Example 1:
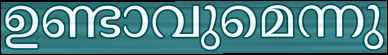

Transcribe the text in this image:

ഉണ്ടാവുമെന്നു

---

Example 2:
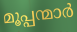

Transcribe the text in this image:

മൂപ്പന്മാർ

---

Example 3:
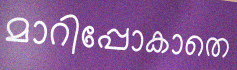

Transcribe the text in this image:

മാറിപ്പോകാതെ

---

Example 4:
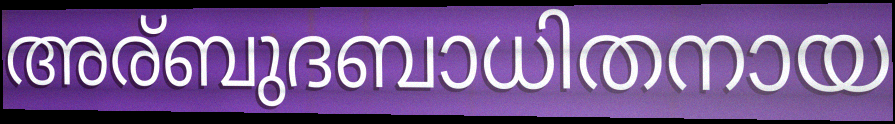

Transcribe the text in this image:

അര്ബുദബാധിതനായ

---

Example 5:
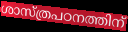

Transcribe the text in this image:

ശാസ്ത്രപഠനത്തിന്